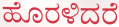
ಹೊರಳಿದರೆ